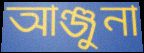
আঞ্জুনা